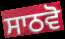
ਸਾਠਵੋ